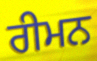
ਰੀਮਨ